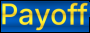
Payoff